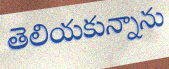
తెలియకున్నాను